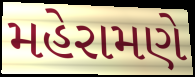
મહેરામણે